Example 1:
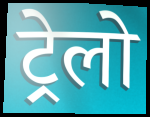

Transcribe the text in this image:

ट्रेलो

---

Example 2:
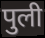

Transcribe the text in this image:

पुली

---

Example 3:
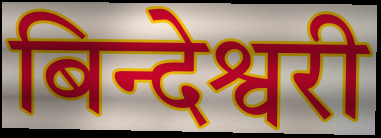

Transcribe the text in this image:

बिन्देश्वरी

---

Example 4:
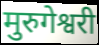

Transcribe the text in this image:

मुरुगेश्वरी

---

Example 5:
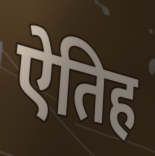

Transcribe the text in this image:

ऐतिह